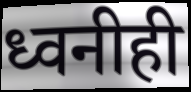
ध्वनीही